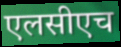
एलसीएच